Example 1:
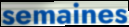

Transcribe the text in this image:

semaines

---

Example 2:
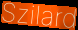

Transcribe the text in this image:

Szilard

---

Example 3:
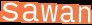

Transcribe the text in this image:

sawan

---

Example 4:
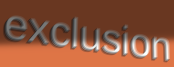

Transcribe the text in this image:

exclusion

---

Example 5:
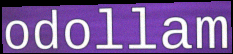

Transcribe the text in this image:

odollam